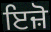
ਇਜ਼ੋ